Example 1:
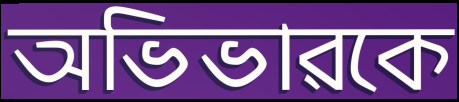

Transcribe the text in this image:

অভিভাৱকে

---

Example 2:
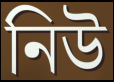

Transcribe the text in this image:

নিউ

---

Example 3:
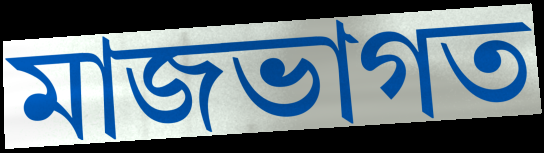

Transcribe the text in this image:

মাজভাগত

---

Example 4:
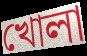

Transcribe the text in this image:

খোলা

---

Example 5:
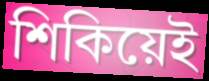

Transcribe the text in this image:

শিকিয়েই